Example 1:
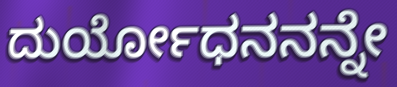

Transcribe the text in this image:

ದುರ್ಯೋಧನನನ್ನೇ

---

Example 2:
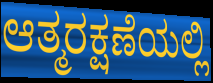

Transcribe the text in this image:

ಆತ್ಮರಕ್ಷಣೆಯಲ್ಲಿ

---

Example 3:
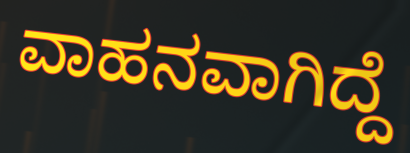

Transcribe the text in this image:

ವಾಹನವಾಗಿದ್ದೆ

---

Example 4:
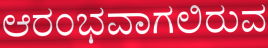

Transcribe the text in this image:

ಆರಂಭವಾಗಲಿರುವ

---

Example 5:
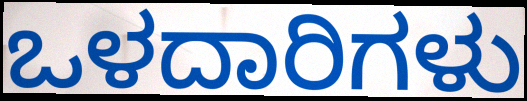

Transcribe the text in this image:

ಒಳದಾರಿಗಳು